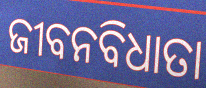
ଜୀବନବିଧାତା